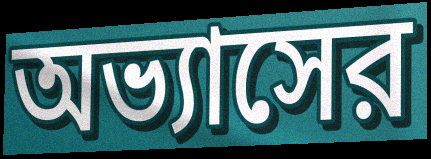
অভ্যাসের